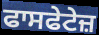
ਫਾਸਫੇਟੇਜ਼